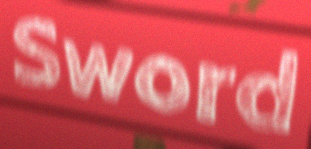
Sword